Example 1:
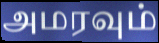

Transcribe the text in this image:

அமரவும்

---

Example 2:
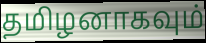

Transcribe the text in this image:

தமிழனாகவும்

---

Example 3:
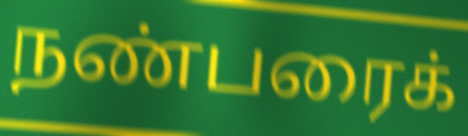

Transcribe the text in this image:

நண்பரைக்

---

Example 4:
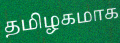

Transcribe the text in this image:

தமிழகமாக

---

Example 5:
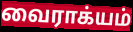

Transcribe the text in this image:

வைராக்யம்